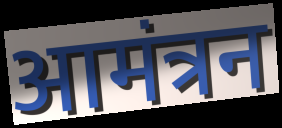
आमंत्रन